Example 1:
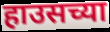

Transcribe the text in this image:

हाउसच्या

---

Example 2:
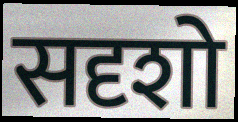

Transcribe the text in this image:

सदृशो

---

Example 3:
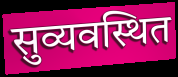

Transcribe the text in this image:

सुव्यवस्थित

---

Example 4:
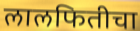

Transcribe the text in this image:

लालफितीचा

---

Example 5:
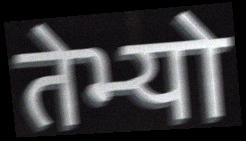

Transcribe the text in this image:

तेभ्यो